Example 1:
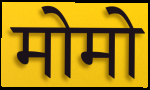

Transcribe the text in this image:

मोमो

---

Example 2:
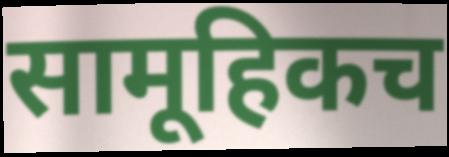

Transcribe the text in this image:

सामूहिकच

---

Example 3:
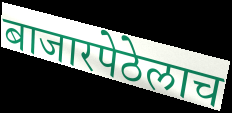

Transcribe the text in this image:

बाजारपेठेलाच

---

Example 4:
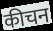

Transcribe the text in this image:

कीचन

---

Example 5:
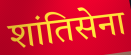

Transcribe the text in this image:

शांतिसेना